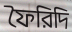
ফৈরিদি